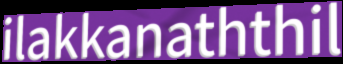
ilakkanaththil